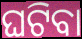
ଘଟିବା